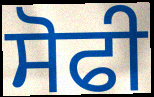
ਸੋਫੀ